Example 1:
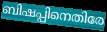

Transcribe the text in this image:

ബിഷപ്പിനെതിരേ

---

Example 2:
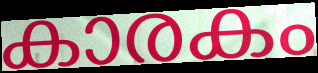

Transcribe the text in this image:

കാരകം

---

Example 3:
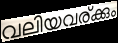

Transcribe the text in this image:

വലിയവര്ക്കും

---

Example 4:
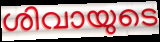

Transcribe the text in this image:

ശിവായുടെ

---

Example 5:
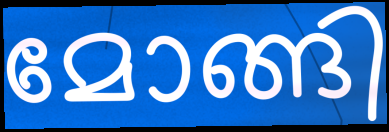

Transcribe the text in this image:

മോങ്ങി